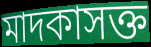
মাদকাসক্ত